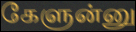
கேளுன்னு